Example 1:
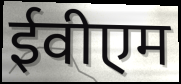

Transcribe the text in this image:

ईवीएम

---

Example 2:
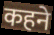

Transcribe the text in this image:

कहने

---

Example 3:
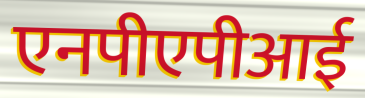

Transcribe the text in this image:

एनपीएपीआई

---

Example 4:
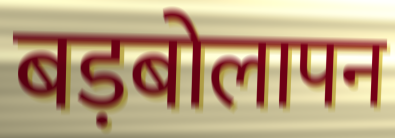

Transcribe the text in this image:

बड़बोलापन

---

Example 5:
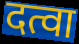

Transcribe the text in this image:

दत्वा